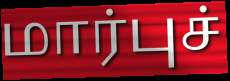
மார்புச்